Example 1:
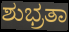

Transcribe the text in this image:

ಶುಭ್ರತಾ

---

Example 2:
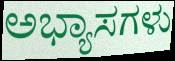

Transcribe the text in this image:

ಅಭ್ಯಾಸಗಳು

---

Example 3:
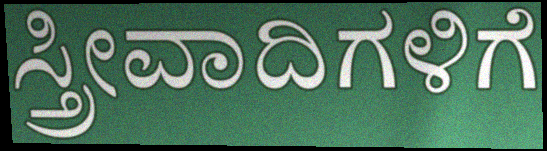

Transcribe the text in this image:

ಸ್ತ್ರೀವಾದಿಗಳಿಗೆ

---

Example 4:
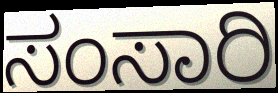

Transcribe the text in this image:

ಸಂಸಾರಿ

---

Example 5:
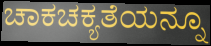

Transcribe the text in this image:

ಚಾಕಚಕ್ಯತೆಯನ್ನೂ